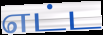
எட்ட